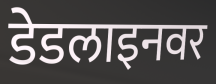
डेडलाइनवर